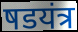
षडयंत्र